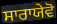
ਸਾਰਾਯੇਵੋ